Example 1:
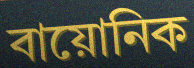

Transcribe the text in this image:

বায়োনিক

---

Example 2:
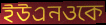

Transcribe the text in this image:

ইউএনওকে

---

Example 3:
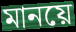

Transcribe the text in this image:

মানয়ে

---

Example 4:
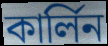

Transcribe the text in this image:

কার্লিন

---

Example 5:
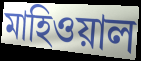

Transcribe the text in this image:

মাহিওয়াল